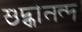
শুদ্ধানন্দ